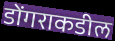
डोंगराकडील